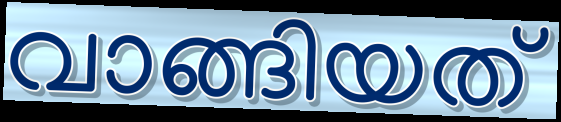
വാങ്ങിയത്